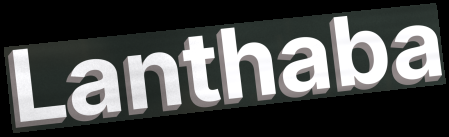
Lanthaba